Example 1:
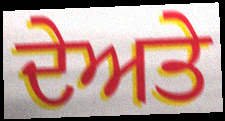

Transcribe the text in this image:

ਦੇਅਤੇ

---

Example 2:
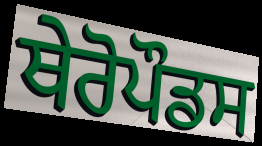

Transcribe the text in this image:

ਥੇਰੋਪੌਡਸ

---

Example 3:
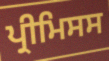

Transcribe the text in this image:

ਪ੍ਰੀਮਿਸਸ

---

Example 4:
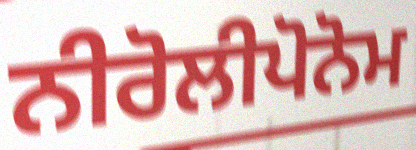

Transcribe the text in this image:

ਨੀਰੋਲੀਪੋਨੋਮ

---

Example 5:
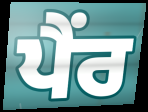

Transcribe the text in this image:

ਪੈਂਰ